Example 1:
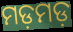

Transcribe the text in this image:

ମଡ଼ମଡ଼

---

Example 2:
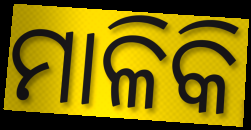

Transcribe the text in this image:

ମାଳିକି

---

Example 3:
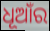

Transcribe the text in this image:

ଧୂଆଁର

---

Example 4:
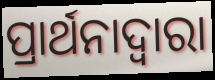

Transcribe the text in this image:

ପ୍ରାର୍ଥନାଦ୍ଵାରା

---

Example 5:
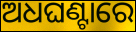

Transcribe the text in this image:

ଅଧଘଣ୍ଟାରେ